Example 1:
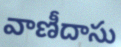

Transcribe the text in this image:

వాణీదాసు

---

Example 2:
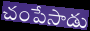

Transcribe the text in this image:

చంపేసాడు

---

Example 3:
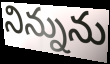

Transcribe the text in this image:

నిన్నును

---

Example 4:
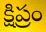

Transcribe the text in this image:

క్షిప్రం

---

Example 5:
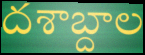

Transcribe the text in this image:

దశాబ్దాల